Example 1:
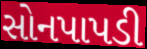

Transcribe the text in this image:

સોનપાપડી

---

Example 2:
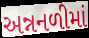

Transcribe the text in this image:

અન્નનળીમાં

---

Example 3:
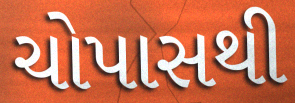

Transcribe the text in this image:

ચોપાસથી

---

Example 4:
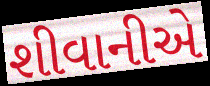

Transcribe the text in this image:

શીવાનીએ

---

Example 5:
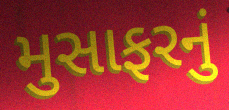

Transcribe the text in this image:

મુસાફરનું